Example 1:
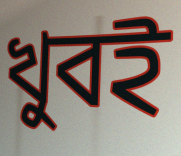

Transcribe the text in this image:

খুবই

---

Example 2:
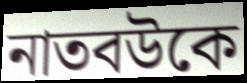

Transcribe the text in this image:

নাতবউকে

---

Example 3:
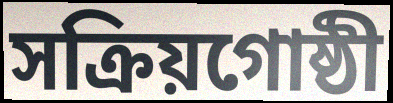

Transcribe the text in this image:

সক্রিয়গোষ্ঠী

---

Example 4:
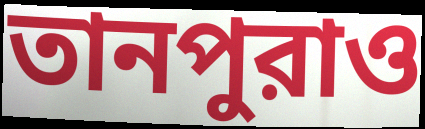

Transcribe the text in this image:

তানপুরাও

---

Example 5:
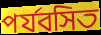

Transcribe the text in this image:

পর্যবসিত